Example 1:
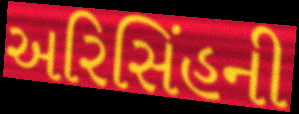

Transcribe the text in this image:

અરિસિંહની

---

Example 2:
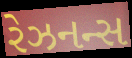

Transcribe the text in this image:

રેઝનન્સ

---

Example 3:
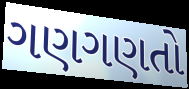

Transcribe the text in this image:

ગણગણતો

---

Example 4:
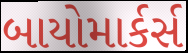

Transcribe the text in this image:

બાયોમાર્કર્સ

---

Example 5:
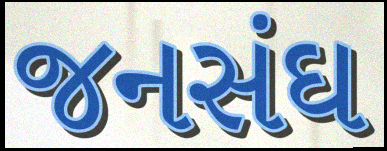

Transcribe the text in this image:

જનસંઘ